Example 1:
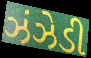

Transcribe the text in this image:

ઝંઝેડી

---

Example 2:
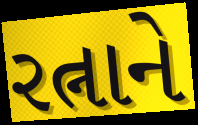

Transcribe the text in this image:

રત્નાને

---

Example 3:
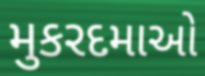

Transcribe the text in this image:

મુકરદમાઓ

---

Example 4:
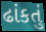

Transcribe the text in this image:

ઢાંકતું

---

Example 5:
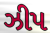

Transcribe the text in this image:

ઝીપ